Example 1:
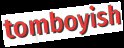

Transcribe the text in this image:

tomboyish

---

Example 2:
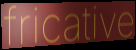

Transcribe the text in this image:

fricative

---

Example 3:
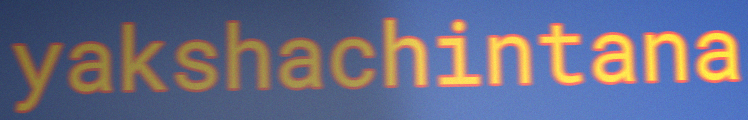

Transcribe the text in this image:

yakshachintana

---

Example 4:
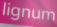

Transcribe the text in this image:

lignum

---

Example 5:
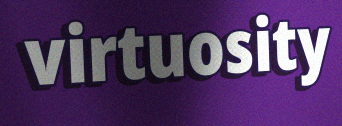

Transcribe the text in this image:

virtuosity